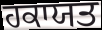
ਹਕਾਯਤ